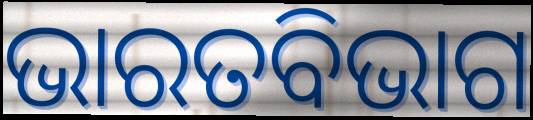
ଭାରତବିଭାଗ